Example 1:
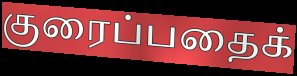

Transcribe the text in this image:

குரைப்பதைக்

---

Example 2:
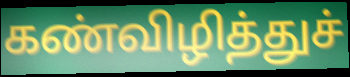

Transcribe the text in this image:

கண்விழித்துச்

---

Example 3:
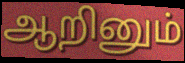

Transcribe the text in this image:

ஆறினும்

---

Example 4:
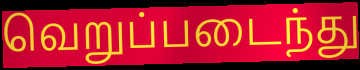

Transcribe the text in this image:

வெறுப்படைந்து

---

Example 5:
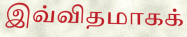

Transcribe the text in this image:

இவ்விதமாகக்